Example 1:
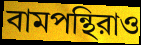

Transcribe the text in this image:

বামপন্থিরাও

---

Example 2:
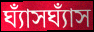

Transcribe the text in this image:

ঘ্যাঁসঘ্যাঁস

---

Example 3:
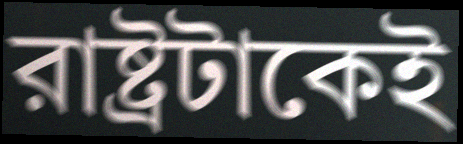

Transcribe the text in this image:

রাষ্ট্রটাকেই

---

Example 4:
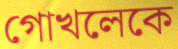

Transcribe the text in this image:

গোখলেকে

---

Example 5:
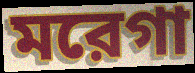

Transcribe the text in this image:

মরেগা